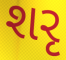
શરૃ